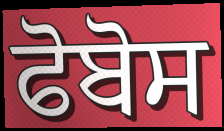
ਫੋਬੋਸ